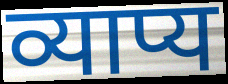
व्याप्य